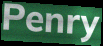
Penry